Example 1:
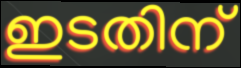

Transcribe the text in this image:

ഇടതിന്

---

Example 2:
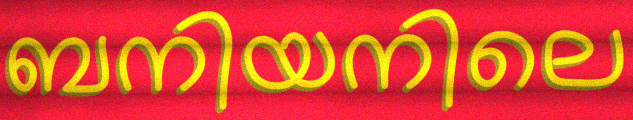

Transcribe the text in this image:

ബനിയനിലെ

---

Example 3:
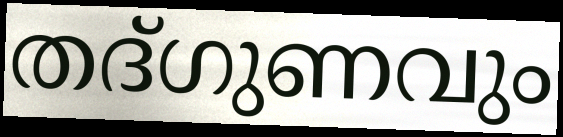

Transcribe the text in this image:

തദ്ഗുണവും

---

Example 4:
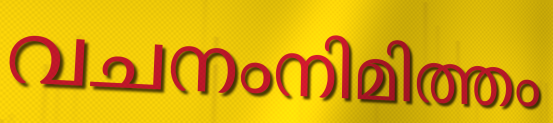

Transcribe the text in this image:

വചനംനിമിത്തം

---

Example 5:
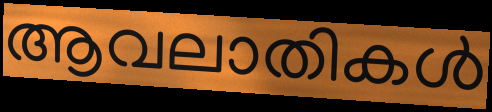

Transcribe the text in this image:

ആവലാതികൾ